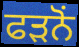
ਫੜਨੋਂ